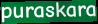
puraskara